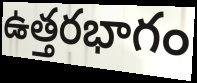
ఉత్తరభాగం